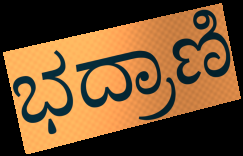
ಭದ್ರಾಣಿ